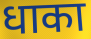
धाका